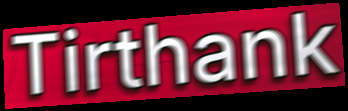
Tirthank